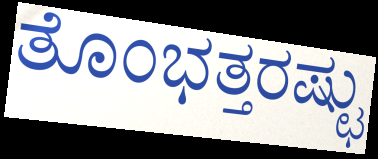
ತೊಂಭತ್ತರಷ್ಟು